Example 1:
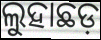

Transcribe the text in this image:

ଲୁହାଛଡ଼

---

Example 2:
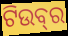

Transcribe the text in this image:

ଟିଉବ୍‍ର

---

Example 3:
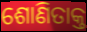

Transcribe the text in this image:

ଶୋଣିତାକ୍ତ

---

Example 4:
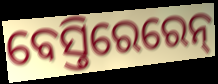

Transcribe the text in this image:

ବେସ୍ତିରେରେନ୍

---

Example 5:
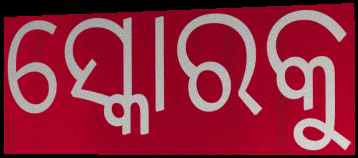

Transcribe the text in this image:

ସ୍କୋରକୁ